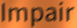
Impair